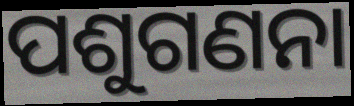
ପଶୁଗଣନା